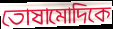
তোষামোদিকে